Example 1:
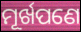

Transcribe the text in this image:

ମୂର୍ଖପଣେ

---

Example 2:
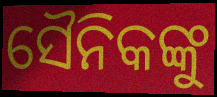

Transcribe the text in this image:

ସୈନିକଙ୍କୁ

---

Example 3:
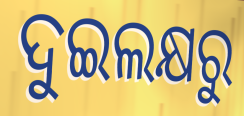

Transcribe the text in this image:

ଦୁଇଲକ୍ଷରୁ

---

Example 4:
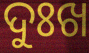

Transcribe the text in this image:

ଦୁଃଖ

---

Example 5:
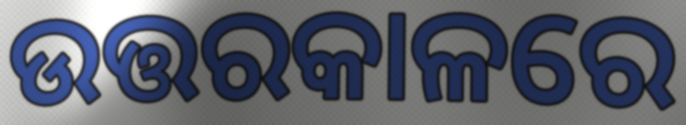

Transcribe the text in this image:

ଉତ୍ତରକାଳରେ